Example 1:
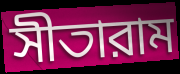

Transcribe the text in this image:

সীতারাম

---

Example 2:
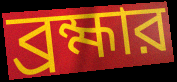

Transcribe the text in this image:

ব্রহ্মার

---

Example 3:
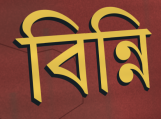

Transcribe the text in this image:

বিন্নি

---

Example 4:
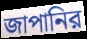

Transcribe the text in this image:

জাপানির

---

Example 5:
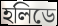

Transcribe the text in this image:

হলিডে